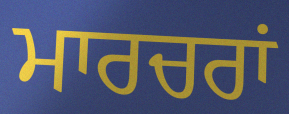
ਮਾਰਚਰਾਂ